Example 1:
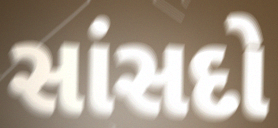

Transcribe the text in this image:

સાંસદો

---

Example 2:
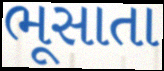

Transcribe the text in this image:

ભૂસાતા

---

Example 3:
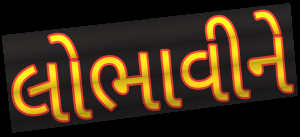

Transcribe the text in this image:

લોભાવીને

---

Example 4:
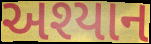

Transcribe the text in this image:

અશ્યાન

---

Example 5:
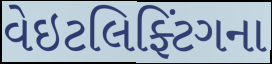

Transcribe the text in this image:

વેઇટલિફ્ટિંગના